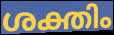
ശക്തിം